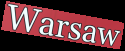
Warsaw